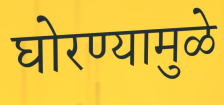
घोरण्यामुळे